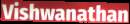
Vishwanathan